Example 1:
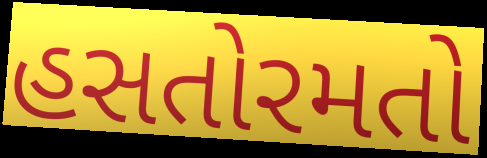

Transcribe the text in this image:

હસતોરમતો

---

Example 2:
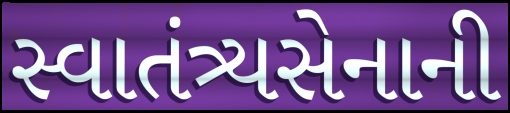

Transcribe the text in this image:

સ્વાતંત્ર્યસેનાની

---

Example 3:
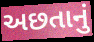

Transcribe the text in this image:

અછતાનું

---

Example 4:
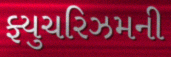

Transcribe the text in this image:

ફ્યુચરિઝમની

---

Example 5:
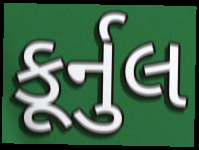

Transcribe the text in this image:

કૂર્નુલ